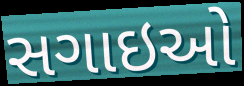
સગાઇઓ